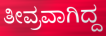
ತೀವ್ರವಾಗಿದ್ದ